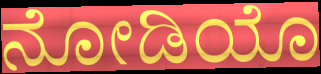
ನೋಡಿಯೊ